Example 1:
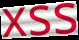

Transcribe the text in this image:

xss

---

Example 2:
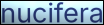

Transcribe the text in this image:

nucifera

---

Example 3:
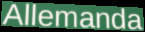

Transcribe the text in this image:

Allemanda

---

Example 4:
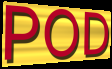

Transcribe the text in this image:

POD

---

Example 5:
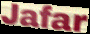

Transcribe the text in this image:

Jafar